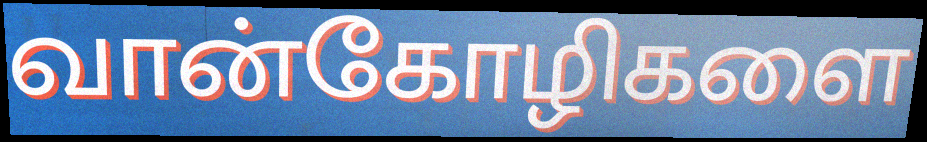
வான்கோழிகளை